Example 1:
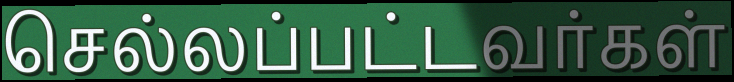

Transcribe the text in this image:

செல்லப்பட்டவர்கள்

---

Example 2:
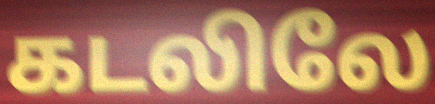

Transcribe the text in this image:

கடலிலே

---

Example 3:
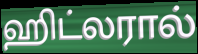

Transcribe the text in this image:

ஹிட்லரால்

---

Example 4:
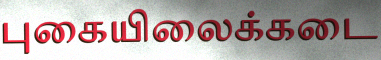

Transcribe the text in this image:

புகையிலைக்கடை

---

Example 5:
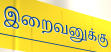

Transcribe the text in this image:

இறைவனுக்கு